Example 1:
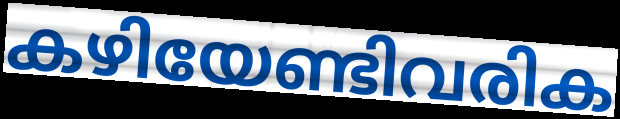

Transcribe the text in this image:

കഴിയേണ്ടിവരിക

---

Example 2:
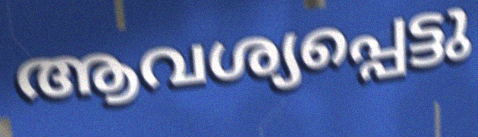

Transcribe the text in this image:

ആവശ്യപ്പെട്ടു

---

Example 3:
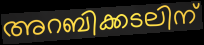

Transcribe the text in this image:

അറബിക്കടലിന്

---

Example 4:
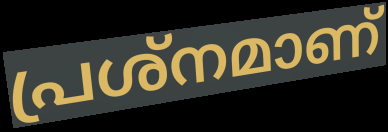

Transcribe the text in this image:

പ്രശ്നമാണ്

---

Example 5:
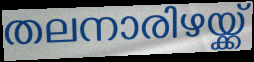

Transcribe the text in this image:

തലനാരിഴയ്ക്ക്